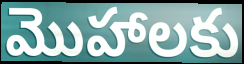
మొహాలకు